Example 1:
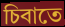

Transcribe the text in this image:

চিবাতে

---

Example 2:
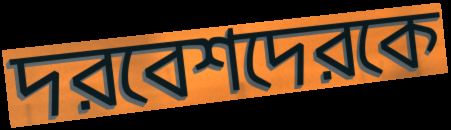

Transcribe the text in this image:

দরবেশদেরকে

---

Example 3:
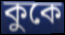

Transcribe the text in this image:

কুকে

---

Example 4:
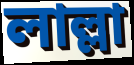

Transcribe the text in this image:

লাল্লা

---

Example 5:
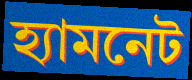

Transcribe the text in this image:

হ্যামনেট